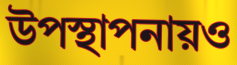
উপস্থাপনায়ও